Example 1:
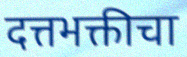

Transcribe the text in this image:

दत्तभक्तीचा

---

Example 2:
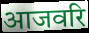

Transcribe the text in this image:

आजवरि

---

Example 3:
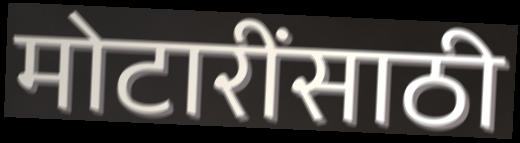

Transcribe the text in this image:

मोटारींसाठी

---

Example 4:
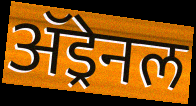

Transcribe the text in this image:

ॲड्रेनल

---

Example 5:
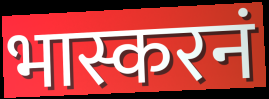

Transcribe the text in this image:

भास्करनं